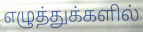
எழுத்துக்களில்